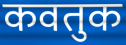
कवतुक